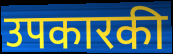
उपकारकी